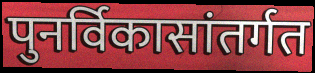
पुनर्विकासांतर्गत